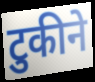
टुकीने